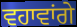
ਵਹਾਵਾਂਗੇ